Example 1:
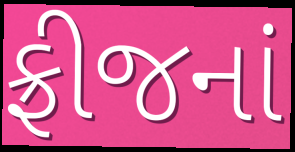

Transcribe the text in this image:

ફ્રીજનાં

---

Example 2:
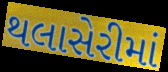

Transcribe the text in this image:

થલાસેરીમાં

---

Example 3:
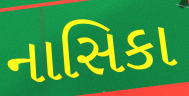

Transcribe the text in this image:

નાસિકા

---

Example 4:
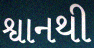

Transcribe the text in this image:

શ્વાનથી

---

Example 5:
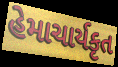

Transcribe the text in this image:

હેમાચાર્યકૃત